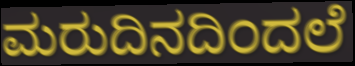
ಮರುದಿನದಿಂದಲೆ